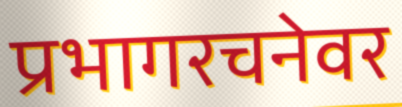
प्रभागरचनेवर